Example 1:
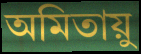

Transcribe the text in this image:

অমিতায়ু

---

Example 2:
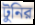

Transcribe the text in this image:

টুনির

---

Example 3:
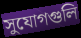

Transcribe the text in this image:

সুযোগগুলি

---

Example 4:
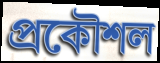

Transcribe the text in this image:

প্রকৌশল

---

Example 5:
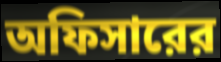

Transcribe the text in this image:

অফিসারের